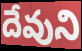
దేవుని